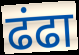
ढंढा